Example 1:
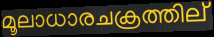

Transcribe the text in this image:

മൂലാധാരചക്രത്തില്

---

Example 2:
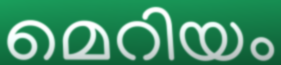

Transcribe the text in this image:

മെറിയം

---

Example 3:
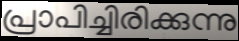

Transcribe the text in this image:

പ്രാപിച്ചിരിക്കുന്നു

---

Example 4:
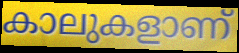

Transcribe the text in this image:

കാലുകളാണ്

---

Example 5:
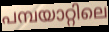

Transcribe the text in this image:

പമ്പയാറ്റിലെ